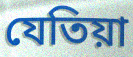
যেতিয়া